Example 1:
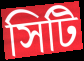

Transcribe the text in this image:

সিটি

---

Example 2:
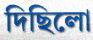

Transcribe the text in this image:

দিছিলো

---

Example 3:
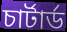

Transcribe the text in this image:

চার্টার্ড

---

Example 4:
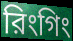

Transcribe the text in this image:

রিংগিং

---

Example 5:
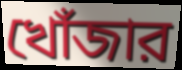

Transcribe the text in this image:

খোঁজার